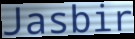
Jasbir